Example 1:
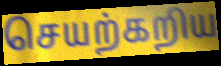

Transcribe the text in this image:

செயற்கறிய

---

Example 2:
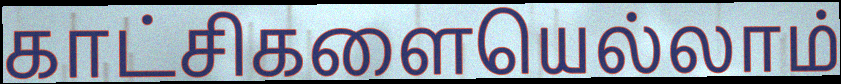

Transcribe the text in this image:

காட்சிகளையெல்லாம்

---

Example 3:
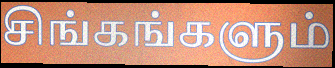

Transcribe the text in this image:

சிங்கங்களும்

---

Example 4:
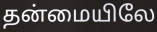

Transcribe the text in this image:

தன்மையிலே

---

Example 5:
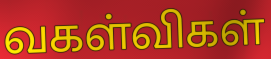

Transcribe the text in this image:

வகள்விகள்